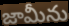
జామీను